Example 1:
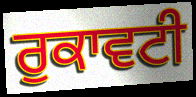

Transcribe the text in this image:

ਰੁਕਾਵਟੀ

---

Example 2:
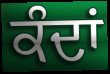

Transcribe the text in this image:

ਕੰਦਾਂ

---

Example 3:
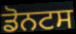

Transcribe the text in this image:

ਡੋਨਟਸ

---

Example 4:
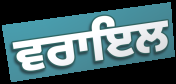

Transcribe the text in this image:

ਵਰਾਇਲ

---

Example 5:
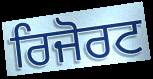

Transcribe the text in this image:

ਰਿਜੋਰਟ